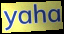
yaha